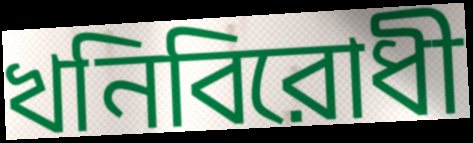
খনিবিরোধী